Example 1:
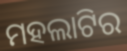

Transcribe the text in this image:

ମହଲାଟିର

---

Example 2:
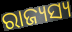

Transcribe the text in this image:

ରାଜ୍ୟସ୍ୟ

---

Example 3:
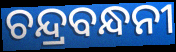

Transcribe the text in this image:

ଚନ୍ଦ୍ରବନ୍ଧନୀ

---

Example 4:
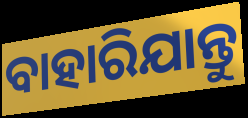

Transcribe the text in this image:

ବାହାରିଯାନ୍ତୁ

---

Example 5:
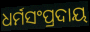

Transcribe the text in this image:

ଧର୍ମସଂପ୍ରଦାୟ